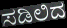
ಸಡಿಲಿದ